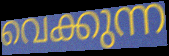
വെക്കുന്ന